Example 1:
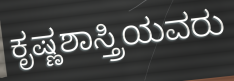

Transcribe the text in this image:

ಕೃಷ್ಣಶಾಸ್ತ್ರಿಯವರು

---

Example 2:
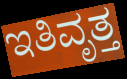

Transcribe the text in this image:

ಇತಿವೃತ್ತ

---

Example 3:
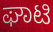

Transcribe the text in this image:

ಘಾಟಿ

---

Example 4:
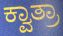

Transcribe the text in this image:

ಕ್ವಾತ್ರಾ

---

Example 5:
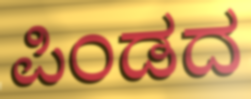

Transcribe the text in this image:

ಪಿಂಡದ